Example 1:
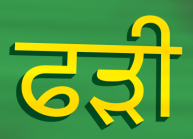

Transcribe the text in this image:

ਫੜੀ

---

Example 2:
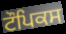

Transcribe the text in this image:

ਟੌਪਿਕਸ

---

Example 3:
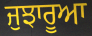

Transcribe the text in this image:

ਜੁਝਾਰੂਆ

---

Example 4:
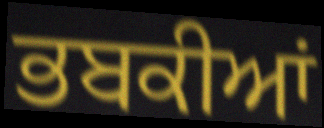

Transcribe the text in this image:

ਭਬਕੀਆਂ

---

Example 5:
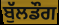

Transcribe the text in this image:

ਬੁੱਲਡੌਗ